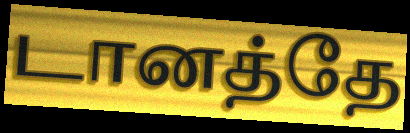
டானத்தே